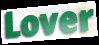
Lover